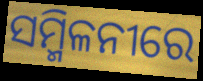
ସମ୍ମିଳନୀରେ